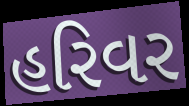
હરિવર